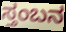
ಸ್ತಂಬನ